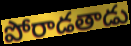
పోరాడతాడు